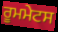
ਰੂਮਮੇਟਸ